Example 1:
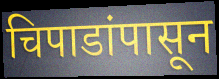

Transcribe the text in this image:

चिपाडांपासून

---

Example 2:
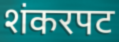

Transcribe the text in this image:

शंकरपट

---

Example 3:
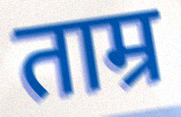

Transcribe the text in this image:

ताम्र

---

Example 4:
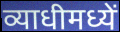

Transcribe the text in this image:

व्याधीमध्यें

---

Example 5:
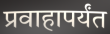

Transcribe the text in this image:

प्रवाहापर्यंत